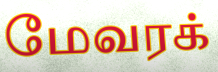
மேவரக்